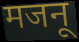
मजनू